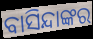
ବାସିନ୍ଦାଙ୍କର